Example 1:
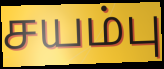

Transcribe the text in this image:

சயம்பு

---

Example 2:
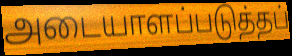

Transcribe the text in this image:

அடையாளப்படுத்தப்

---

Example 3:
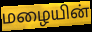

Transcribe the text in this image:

மழையின்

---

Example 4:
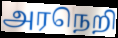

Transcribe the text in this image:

அரநெறி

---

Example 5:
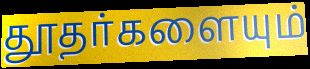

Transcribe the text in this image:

தூதர்களையும்